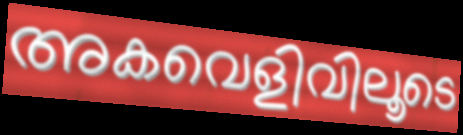
അകവെളിവിലൂടെ